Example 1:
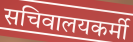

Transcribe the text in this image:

सचिवालयकर्मी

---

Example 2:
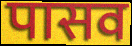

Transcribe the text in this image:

पासव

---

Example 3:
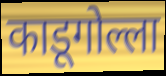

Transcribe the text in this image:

काडूगोल्ला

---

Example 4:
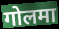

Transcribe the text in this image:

गोलमा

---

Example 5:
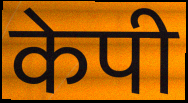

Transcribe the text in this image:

केपी